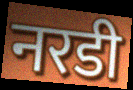
नरडी